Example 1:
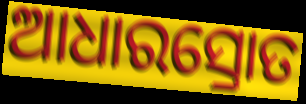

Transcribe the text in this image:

ଆଧାରସ୍ରୋତ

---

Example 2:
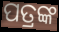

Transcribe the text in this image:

ପତ୍ରଙ୍କ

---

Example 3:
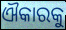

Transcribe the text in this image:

ଐକାରକୁ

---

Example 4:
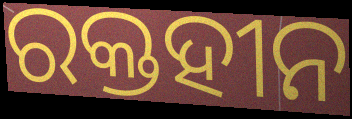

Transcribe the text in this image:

ରକ୍ତହୀନ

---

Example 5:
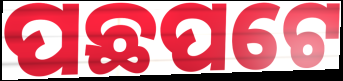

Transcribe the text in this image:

ପଛପଟେ